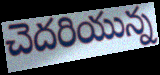
చెదరియున్న